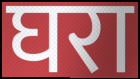
घरा